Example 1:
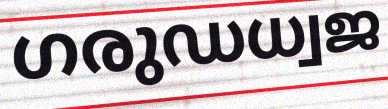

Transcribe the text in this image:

ഗരുഡധ്വജ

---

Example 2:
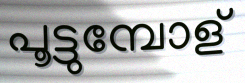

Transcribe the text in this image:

പൂട്ടുമ്പോള്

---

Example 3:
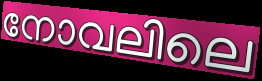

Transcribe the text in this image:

നോവലിലെ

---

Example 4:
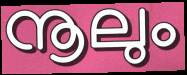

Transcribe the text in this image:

നൂലും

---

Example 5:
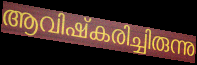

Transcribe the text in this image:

ആവിഷ്‌കരിച്ചിരുന്നു